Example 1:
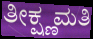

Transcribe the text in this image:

ತೀಕ್ಷ್ಣಮತಿ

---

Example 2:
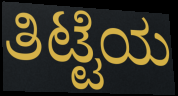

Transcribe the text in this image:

ತಿಟ್ಟೆಯ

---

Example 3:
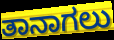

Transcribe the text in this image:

ತಾನಾಗಲು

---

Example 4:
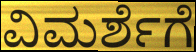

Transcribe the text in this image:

ವಿಮರ್ಶೆಗೆ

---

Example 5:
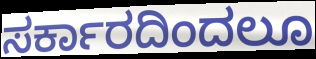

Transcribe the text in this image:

ಸರ್ಕಾರದಿಂದಲೂ